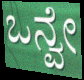
ಒನ್ವೇ